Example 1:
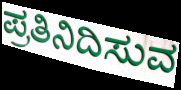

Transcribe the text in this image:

ಪ್ರತಿನಿದಿಸುವ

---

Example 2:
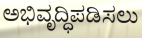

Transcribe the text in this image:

ಅಭಿವೃದ್ಧಿಪಡಿಸಲು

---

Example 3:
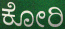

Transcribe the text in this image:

ಕೋರಿ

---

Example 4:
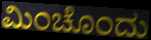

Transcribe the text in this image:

ಮಿಂಚೊಂದು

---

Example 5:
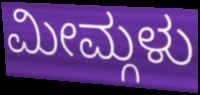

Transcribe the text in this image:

ಮೀಮ್ಗಳು